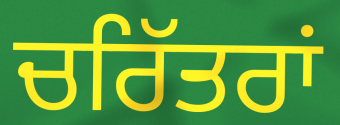
ਚਰਿੱਤਰਾਂ